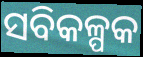
ସବିକଳ୍ପକ